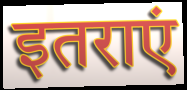
इतराएं